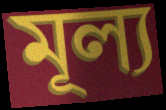
মূল্য়